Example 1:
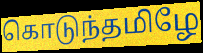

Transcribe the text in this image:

கொடுந்தமிழே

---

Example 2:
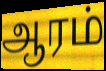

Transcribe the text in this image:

ஆரம்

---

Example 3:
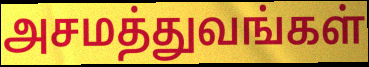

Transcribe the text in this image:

அசமத்துவங்கள்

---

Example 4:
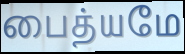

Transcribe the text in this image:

பைத்யமே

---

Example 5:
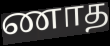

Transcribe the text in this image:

ணாத